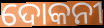
ଦୋକନୀ